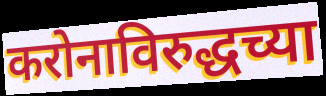
करोनाविरुद्धच्या